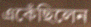
একেঁছিলেন